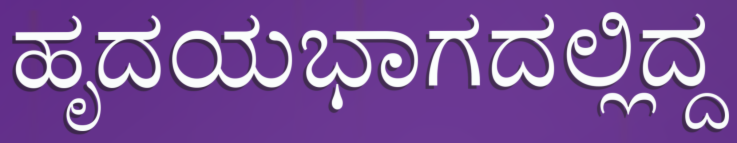
ಹೃದಯಭಾಗದಲ್ಲಿದ್ದ